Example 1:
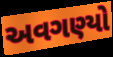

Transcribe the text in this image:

અવગણ્યો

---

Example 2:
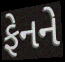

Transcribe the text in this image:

ફેનને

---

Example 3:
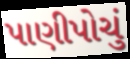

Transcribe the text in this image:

પાણીપોચું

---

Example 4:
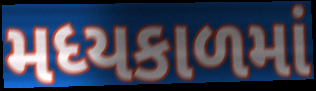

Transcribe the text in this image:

મધ્યકાળમાં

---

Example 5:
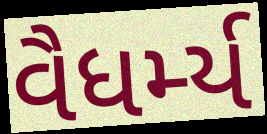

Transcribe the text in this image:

વૈધર્મ્ય